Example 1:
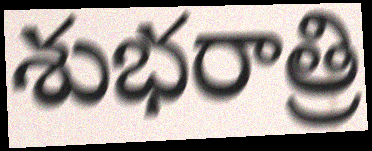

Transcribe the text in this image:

శుభరాత్రి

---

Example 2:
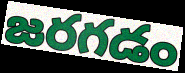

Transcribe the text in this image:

జరగడం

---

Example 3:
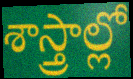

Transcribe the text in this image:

శాస్త్రాల్లో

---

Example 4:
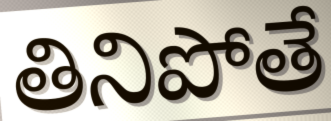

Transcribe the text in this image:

తినిపోతే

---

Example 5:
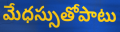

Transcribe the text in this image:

మేధస్సుతోపాటు